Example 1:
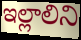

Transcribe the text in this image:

ఇల్లాలిని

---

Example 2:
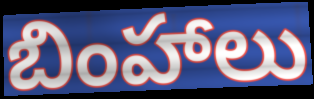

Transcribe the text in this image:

బింహాలు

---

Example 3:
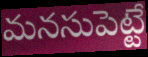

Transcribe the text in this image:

మనసుపెట్టే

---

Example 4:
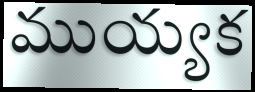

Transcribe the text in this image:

ముయ్యక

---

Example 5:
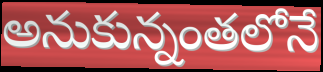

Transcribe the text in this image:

అనుకున్నంతలోనే